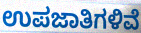
ಉಪಜಾತಿಗಳಿವೆ